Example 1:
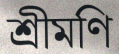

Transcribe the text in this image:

শ্রীমণি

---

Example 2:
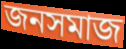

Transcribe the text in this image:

জনসমাজ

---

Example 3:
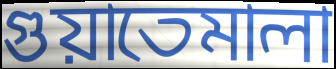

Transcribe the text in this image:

গুয়াতেমালা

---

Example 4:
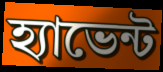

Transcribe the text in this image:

হ্যাভেন্ট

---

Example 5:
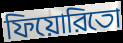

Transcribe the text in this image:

ফিয়োরিতো